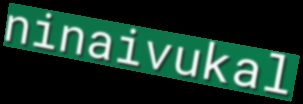
ninaivukal